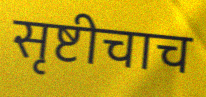
सृष्टीचाच